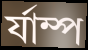
র্যাম্প